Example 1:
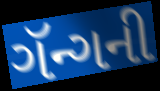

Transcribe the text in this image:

ગૅન્ગની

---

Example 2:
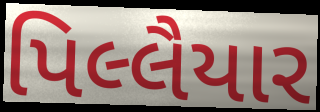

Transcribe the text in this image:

પિલ્લૈયાર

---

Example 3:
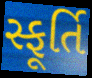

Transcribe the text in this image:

સ્ફૂર્તિ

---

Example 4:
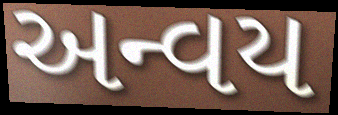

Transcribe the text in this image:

અન્વય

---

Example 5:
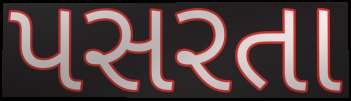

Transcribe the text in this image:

પસરતા